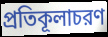
প্রতিকূলাচরণ